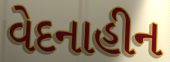
વેદનાહીન